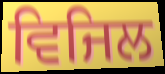
ਵਿਜਿਲ